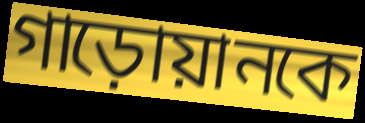
গাড়োয়ানকে